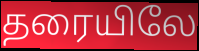
தரையிலே